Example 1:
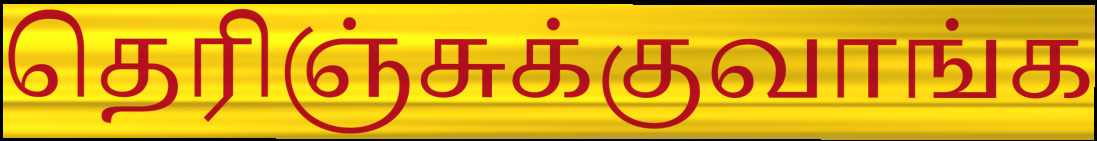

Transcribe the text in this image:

தெரிஞ்சுக்குவாங்க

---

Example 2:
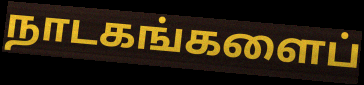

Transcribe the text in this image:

நாடகங்களைப்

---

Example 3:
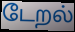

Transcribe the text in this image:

டேறல்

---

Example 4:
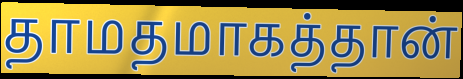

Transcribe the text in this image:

தாமதமாகத்தான்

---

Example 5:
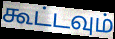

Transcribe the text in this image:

கூட்டவும்